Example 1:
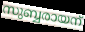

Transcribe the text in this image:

സുബ്ബരായന്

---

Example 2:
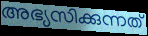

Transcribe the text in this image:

അഭ്യസിക്കുന്നത്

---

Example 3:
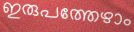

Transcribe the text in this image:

ഇരുപത്തേഴാം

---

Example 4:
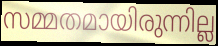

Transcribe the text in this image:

സമ്മതമായിരുന്നില്ല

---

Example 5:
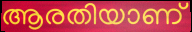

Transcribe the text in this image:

ആരതിയാണ്